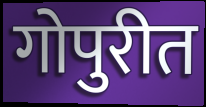
गोपुरीत